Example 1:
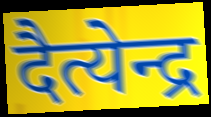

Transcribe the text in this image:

दैत्येन्द्र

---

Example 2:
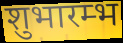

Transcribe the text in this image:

शुभारम्भ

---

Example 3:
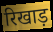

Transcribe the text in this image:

रिखाड़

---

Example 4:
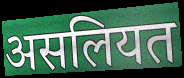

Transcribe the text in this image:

असलियत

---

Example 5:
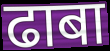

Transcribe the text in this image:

ढाबा